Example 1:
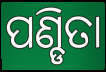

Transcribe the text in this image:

ପଣ୍ଡିତା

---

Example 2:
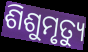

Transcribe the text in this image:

ଶିଶୁମୃତ୍ୟୁ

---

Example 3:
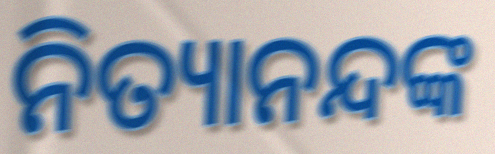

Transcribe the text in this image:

ନିତ୍ୟାନନ୍ଦଙ୍କ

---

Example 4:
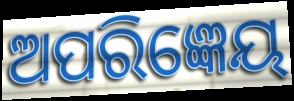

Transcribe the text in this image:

ଅପରିଜ୍ଞେୟ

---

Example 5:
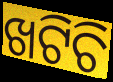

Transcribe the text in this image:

ଖଟିଚି